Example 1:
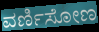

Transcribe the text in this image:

ವರ್ಣಿಸೋಣ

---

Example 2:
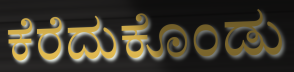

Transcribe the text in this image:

ಕೆರೆದುಕೊಂಡು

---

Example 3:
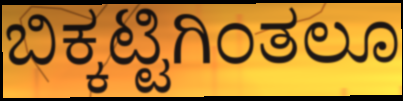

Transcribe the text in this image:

ಬಿಕ್ಕಟ್ಟಿಗಿಂತಲೂ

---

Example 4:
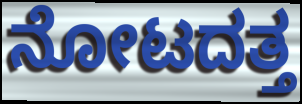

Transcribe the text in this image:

ನೋಟದತ್ತ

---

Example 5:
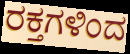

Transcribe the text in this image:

ರಕ್ತಗಳಿಂದ